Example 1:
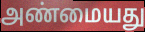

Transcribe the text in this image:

அண்மையது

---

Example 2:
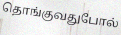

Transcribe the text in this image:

தொங்குவதுபோல்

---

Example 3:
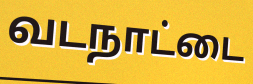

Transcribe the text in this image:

வடநாட்டை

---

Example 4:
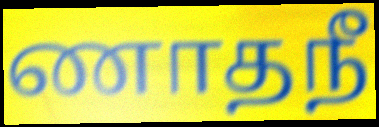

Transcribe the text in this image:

ணாதநீ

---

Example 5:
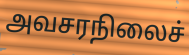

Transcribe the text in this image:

அவசரநிலைச்